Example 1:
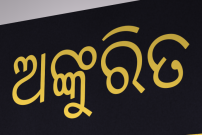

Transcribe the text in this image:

ଅଙ୍କୁରିତ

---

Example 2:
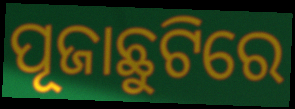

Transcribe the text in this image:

ପୂଜାଛୁଟିରେ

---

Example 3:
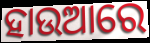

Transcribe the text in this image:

ହାଉଆରେ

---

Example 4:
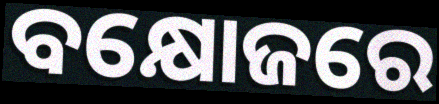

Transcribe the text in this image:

ବକ୍ଷୋଜରେ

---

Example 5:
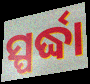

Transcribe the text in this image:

ସ୍ପର୍ଦ୍ଧା